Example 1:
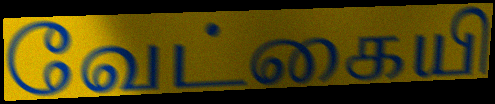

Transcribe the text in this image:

வேட்கையி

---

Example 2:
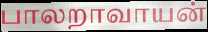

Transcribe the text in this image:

பாலறாவாயன்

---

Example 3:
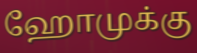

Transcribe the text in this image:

ஹோமுக்கு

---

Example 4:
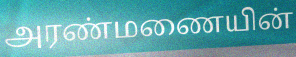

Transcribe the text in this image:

அரண்மணையின்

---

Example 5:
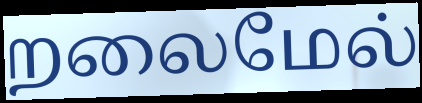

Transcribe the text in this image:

றலைமேல்